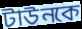
টাউনকে